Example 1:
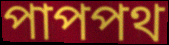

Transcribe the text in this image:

পাপপথ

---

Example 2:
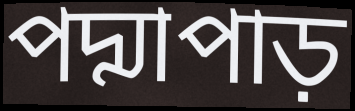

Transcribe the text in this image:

পদ্মাপাড়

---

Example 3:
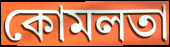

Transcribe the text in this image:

কোমলতা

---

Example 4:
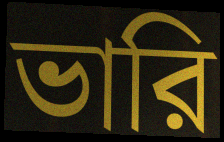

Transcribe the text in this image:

ভারি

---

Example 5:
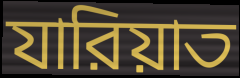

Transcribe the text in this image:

যারিয়াত